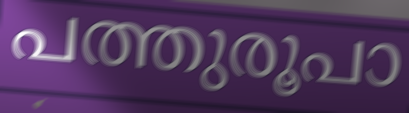
പത്തുരൂപാ